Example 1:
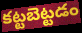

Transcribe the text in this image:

కట్టబెట్టడం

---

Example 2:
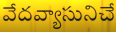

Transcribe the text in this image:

వేదవ్యాసునిచే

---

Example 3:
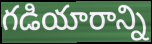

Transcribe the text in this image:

గడియారాన్ని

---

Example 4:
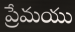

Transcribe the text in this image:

ప్రేమయు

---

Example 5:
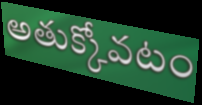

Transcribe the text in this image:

అతుక్కోవటం